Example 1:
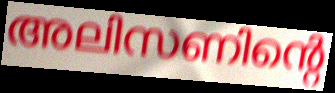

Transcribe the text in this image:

അലിസണിന്റെ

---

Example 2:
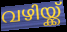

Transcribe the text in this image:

വഴിയ്ക്ക്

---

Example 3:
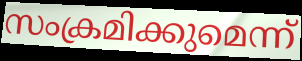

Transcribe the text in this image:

സംക്രമിക്കുമെന്ന്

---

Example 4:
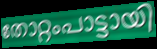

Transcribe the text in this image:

തോറ്റംപാട്ടായി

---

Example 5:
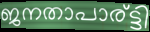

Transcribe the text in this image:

ജനതാപാര്ട്ടി